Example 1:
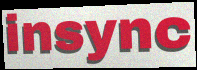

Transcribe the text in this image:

insync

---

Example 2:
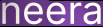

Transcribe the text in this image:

neera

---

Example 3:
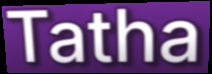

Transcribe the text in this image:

Tatha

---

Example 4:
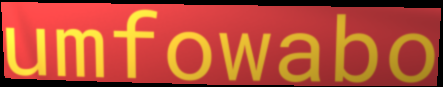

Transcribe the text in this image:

umfowabo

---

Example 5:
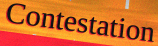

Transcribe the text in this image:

Contestation